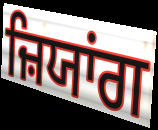
ਜ਼ਿਯਾਂਗ